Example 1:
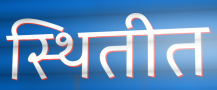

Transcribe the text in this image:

स्थितीत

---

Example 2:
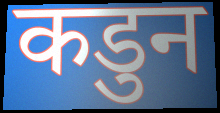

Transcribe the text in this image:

कडुन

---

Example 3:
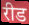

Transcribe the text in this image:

रीड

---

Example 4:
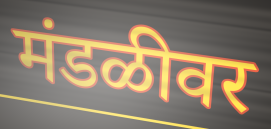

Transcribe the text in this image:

मंडळीवर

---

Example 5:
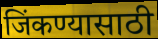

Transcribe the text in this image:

जिंकण्यासाठी